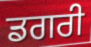
ਡਗਰੀ